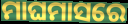
ମାଘମାସରେ